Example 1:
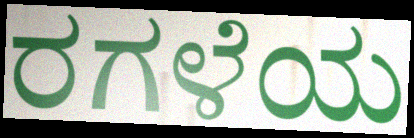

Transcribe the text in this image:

ರಗಳೆಯ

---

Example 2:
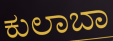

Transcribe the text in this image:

ಕುಲಾಬಾ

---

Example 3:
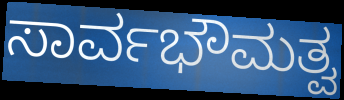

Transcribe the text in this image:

ಸಾರ್ವಭೌಮತ್ವ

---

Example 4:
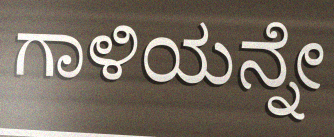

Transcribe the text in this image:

ಗಾಳಿಯನ್ನೇ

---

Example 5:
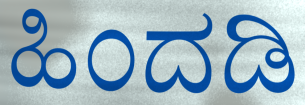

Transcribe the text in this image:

ಹಿಂದಡಿ